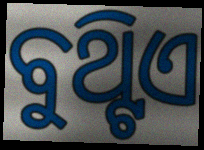
ବୁଥ୍ଟିଏ